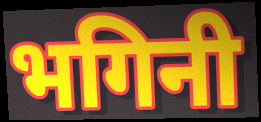
भगिनी